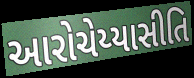
આરોચેય્યાસીતિ